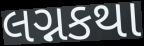
લગ્નકથા